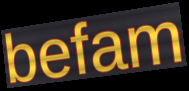
befam